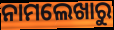
ନାମଲେଖାରୁ